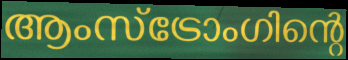
ആംസ്ട്രോംഗിന്റെ